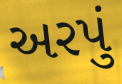
અરપું